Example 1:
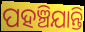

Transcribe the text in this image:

ପହଞ୍ଚିଯାନ୍ତି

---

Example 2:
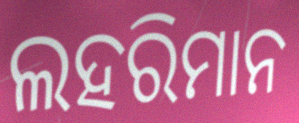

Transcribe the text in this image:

ଲହରିମାନ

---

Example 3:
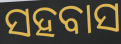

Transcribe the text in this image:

ସହବାସ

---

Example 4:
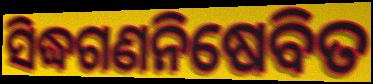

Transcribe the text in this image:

ସିଦ୍ଧଗଣନିଷେବିତ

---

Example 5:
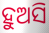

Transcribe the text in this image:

ହୁଅସି